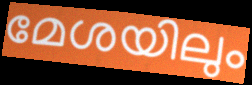
മേശയിലും